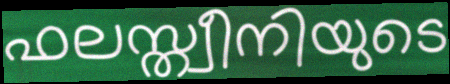
ഫലസ്ത്വീനിയുടെ